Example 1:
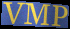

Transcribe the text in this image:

VMP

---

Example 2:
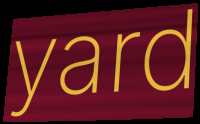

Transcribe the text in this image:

yard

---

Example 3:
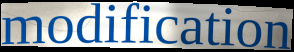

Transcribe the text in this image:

modification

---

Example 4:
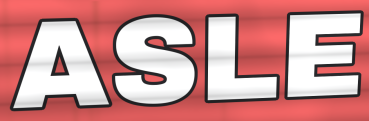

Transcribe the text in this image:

ASLE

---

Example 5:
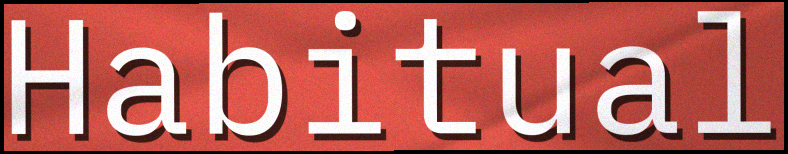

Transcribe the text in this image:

Habitual